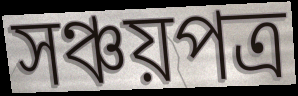
সঞ্চয়পত্র